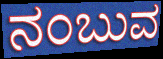
ನಂಬುವ